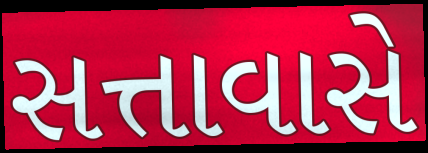
સત્તાવાસે